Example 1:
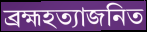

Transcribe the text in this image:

ব্রহ্মহত্যাজনিত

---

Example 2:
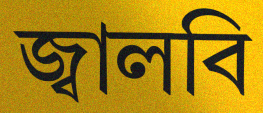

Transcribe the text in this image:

জ্বালবি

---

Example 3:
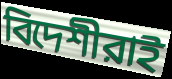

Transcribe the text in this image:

বিদেশীরাই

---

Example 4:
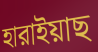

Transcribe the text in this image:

হারাইয়াছ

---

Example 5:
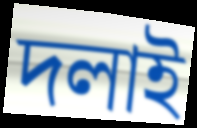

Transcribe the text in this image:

দলাই